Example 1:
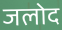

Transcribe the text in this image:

जलोद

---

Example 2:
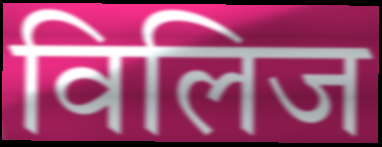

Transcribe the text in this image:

विलिज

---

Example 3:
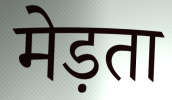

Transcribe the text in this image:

मेड़ता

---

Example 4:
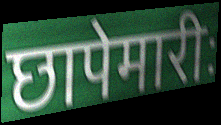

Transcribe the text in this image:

छापेमारीः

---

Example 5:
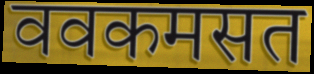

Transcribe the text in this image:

ववकमसत